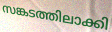
സങ്കടത്തിലാക്കി